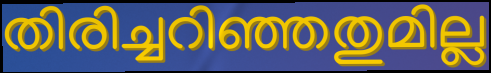
തിരിച്ചറിഞ്ഞതുമില്ല